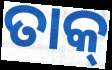
ତାକ୍